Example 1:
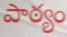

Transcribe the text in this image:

పాఠ్యం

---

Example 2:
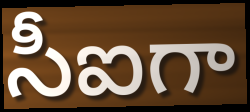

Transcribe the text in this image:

సీఐగా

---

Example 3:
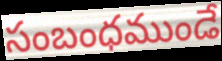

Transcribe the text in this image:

సంబంధముండే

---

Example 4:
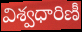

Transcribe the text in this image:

విశ్వధారిణీ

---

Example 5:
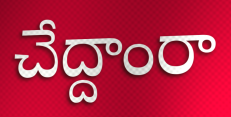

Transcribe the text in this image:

చేద్దాంరా